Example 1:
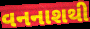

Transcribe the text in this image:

વનનાશથી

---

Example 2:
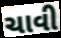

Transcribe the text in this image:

ચાવી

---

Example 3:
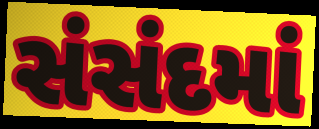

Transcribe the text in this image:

સંસંદમાં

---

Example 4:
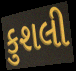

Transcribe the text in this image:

કુશલી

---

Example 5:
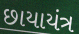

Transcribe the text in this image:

છાયાયંત્ર